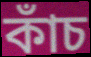
কাঁচ